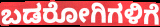
ಬಡರೋಗಿಗಳಿಗೆ